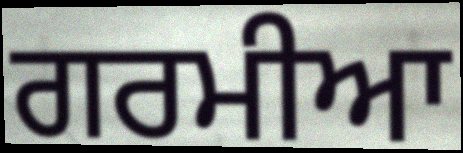
ਗਰਮੀਆ